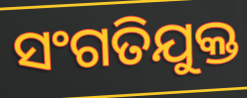
ସଂଗତିଯୁକ୍ତ